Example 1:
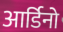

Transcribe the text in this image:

आर्डिनो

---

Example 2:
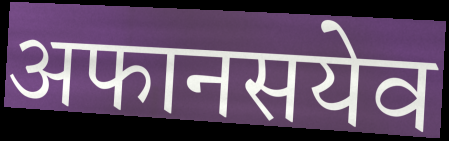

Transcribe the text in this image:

अफानसयेव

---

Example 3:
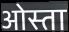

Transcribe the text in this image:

ओस्ता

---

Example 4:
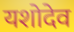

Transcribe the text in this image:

यशोदेव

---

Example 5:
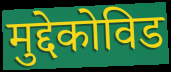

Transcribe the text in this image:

मुद्देकोविड